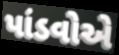
પાંડવોએ